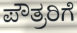
ಪೌತ್ರರಿಗೆ